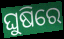
ଘୁଷିରେ